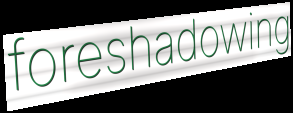
foreshadowing